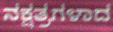
ನಕ್ಷತ್ರಗಳಾದ